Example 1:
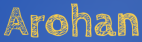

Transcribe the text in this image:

Arohan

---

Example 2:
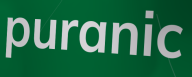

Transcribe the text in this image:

puranic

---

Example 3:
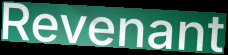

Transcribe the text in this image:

Revenant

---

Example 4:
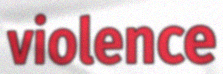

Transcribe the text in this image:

violence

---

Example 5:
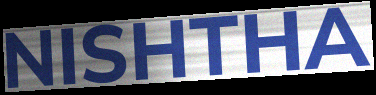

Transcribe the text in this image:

NISHTHA